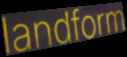
landform